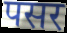
पसर